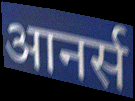
आनर्स